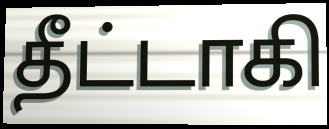
தீட்டாகி